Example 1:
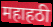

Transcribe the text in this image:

महाहठी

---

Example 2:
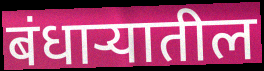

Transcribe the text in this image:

बंधाऱ्यातील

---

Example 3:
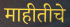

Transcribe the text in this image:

माहीतीचे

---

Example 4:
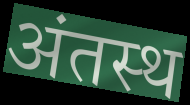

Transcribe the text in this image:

अंतस्थ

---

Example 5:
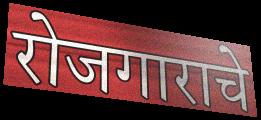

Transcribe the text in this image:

रोजगाराचे